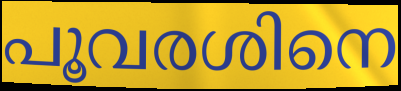
പൂവരശിനെ